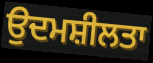
ਉਦਮਸ਼ੀਲਤਾ